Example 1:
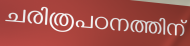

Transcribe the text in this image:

ചരിത്രപഠനത്തിന്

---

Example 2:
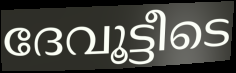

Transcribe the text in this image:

ദേവൂട്ടീടെ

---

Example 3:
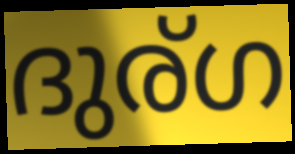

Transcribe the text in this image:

ദുര്ഗ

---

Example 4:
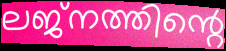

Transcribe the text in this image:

ലജ്നത്തിന്റെ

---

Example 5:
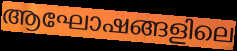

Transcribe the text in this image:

ആഘോഷങ്ങളിലെ